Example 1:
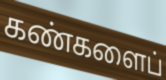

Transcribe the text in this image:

கண்களைப்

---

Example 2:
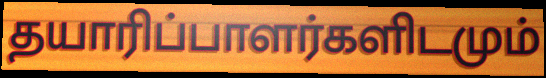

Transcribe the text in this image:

தயாரிப்பாளர்களிடமும்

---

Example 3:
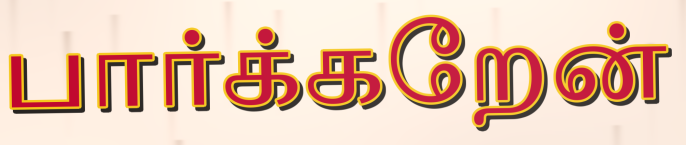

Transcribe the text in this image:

பார்க்கறேன்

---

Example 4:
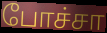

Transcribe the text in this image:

போச்சா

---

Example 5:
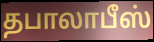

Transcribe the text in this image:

தபாலாபீஸ்